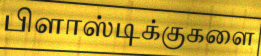
பிளாஸ்டிக்குகளை